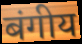
बंगीय